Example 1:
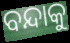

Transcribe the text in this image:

ବନ୍ଦାକୁ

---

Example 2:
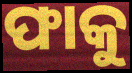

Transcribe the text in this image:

ଫାକୁ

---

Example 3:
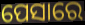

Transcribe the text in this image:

ପେସାରେ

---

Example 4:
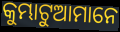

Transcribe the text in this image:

କୁମ୍ଭାଟୁଆମାନେ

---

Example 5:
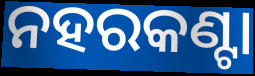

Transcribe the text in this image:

ନହରକଣ୍ଟା